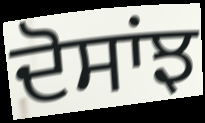
ਦੋਸਾਂਝ